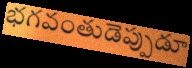
భగవంతుడెప్పుడూ